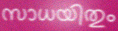
സാധയിതും